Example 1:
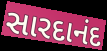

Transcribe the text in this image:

સારદાનંદ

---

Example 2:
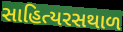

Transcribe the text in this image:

સાહિત્યરસથાળ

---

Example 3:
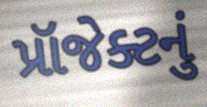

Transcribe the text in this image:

પ્રૉજેક્ટનું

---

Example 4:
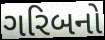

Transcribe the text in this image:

ગરિબનો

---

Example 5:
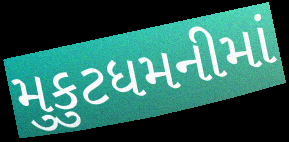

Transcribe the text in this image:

મુકુટધમનીમાં